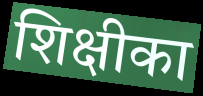
शिक्षीका